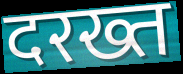
दरख्त